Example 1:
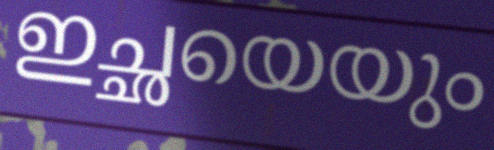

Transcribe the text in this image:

ഇച്ഛയെയും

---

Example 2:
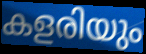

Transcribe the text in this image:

കളരിയും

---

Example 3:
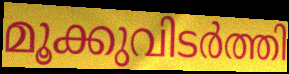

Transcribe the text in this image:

മൂക്കുവിടർത്തി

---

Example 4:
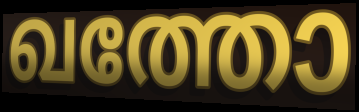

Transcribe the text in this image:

ഖത്തോ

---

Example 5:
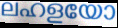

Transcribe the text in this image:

ലഹളയോ